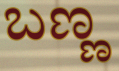
ಬಣ್ಣ